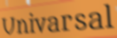
Univarsal